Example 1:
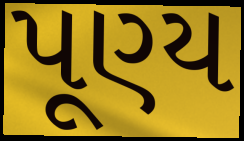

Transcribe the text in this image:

પૂણ્ય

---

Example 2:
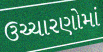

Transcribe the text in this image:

ઉચ્ચારણોમાં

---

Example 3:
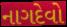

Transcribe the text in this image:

નાગદેવો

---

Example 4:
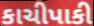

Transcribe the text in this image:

કાચીપાકી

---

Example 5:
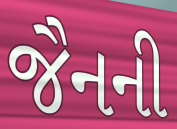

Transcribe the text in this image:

જૈનની